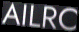
AILRC